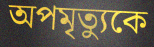
অপমৃত্যুকে